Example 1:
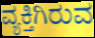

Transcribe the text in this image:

ವ್ಯಕ್ತಿಗಿರುವ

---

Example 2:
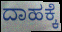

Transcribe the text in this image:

ದಾಹಕ್ಕೆ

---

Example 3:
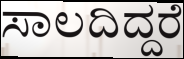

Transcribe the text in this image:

ಸಾಲದಿದ್ದರೆ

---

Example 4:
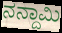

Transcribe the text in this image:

ನನ್ದಾಮಿ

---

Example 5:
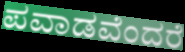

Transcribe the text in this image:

ಪವಾಡವೆಂದರೆ